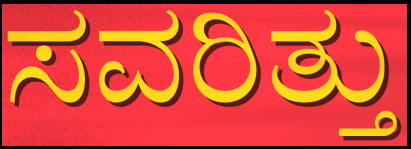
ಸವರಿತ್ತು